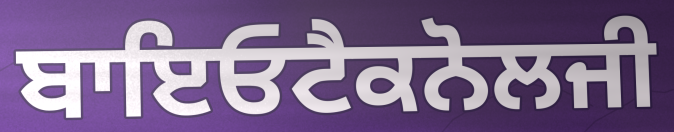
ਬਾਇਓਟੈਕਨੋਲਜੀ